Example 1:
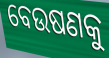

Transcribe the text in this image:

ବେଉଷଣକୁ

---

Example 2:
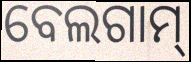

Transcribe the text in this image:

ବେଲଗାମ୍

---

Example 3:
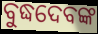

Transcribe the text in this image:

ବୁଦ୍ଧଦେବଙ୍କ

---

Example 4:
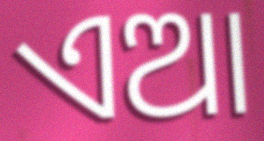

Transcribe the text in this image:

ଏଆ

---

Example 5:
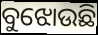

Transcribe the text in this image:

ବୁଝୋଉଛି